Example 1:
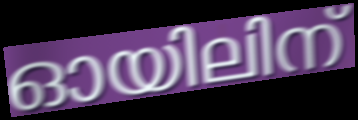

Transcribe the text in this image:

ഓയിലിന്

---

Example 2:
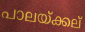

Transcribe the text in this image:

പാലയ്ക്കല്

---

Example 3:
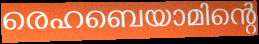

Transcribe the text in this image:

രെഹബെയാമിന്റെ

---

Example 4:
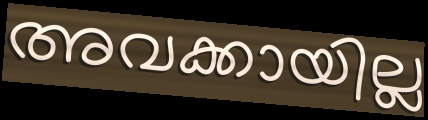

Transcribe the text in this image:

അവക്കായില്ല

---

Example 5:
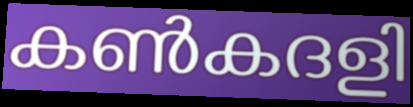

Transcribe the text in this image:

കൺകദളി